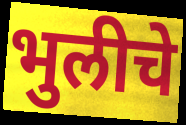
भुलीचे